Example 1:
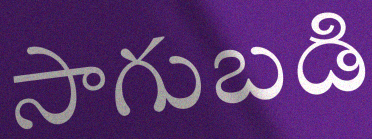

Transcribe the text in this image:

సాగుబడి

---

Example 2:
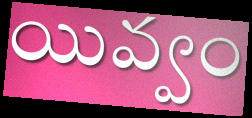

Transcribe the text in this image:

యివ్వం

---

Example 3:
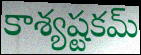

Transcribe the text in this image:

కాశ్యష్టకమ్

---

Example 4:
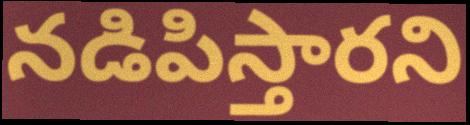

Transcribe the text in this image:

నడిపిస్తారని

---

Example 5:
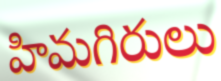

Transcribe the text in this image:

హిమగిరులు